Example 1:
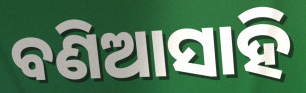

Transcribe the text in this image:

ବଣିଆସାହି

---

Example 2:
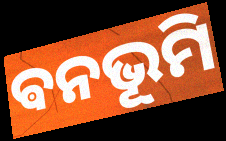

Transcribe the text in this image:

ଵନଭୂମି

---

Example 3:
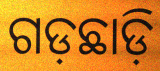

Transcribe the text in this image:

ଗଡ଼ଛାଡ଼ି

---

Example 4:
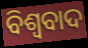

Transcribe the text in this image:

ବିଶ୍ୱବାଦ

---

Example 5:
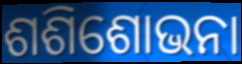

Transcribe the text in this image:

ଶଶିଶୋଭନା